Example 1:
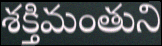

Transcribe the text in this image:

శక్తిమంతుని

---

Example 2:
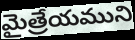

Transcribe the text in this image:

మైత్రేయముని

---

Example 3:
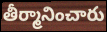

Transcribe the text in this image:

తీర్మానించారు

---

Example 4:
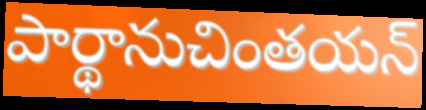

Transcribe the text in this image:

పార్థానుచింతయన్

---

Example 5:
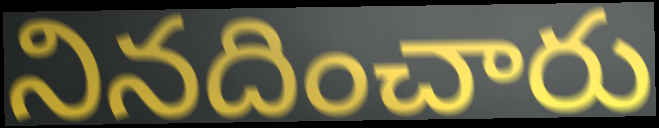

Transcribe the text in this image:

నినదించారు